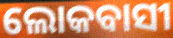
ଲୋକବାସୀ